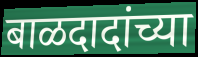
बाळदादांच्या